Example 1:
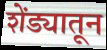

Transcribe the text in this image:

शेंड्यातून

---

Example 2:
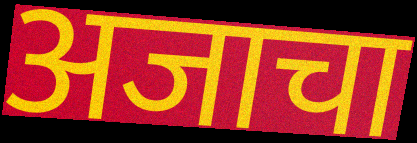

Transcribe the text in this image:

अजाचा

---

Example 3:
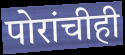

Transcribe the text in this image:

पोरांचीही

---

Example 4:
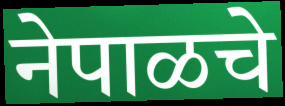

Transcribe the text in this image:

नेपाळचे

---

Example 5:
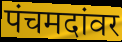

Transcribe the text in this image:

पंचमदांवर